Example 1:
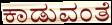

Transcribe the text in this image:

ಕಾಡುವಂತೆ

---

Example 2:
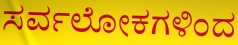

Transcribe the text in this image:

ಸರ್ವಲೋಕಗಳಿಂದ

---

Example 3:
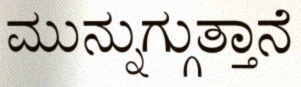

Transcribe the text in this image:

ಮುನ್ನುಗ್ಗುತ್ತಾನೆ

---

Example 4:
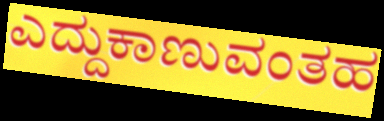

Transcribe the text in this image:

ಎದ್ದುಕಾಣುವಂತಹ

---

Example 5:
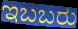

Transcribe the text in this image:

ಇಬಬರು